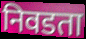
निवडता